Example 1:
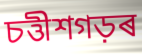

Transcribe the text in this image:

চত্তীশগড়ৰ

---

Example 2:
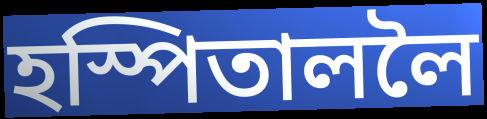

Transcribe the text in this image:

হস্পিতাললৈ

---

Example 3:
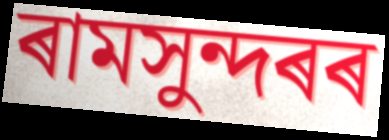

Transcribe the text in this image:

ৰামসুন্দৰৰ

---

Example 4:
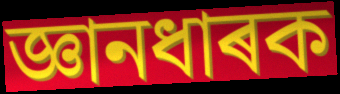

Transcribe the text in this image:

জ্ঞানধাৰক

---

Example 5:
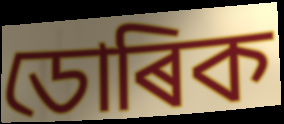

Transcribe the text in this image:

ডোৰিক